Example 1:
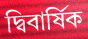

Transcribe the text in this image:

দ্বিবার্ষিক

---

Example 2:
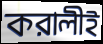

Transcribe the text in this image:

করালীই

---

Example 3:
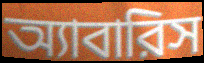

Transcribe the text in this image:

অ্যাবারিস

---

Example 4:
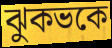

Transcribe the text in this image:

ঝুকভকে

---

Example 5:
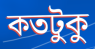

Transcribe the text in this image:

কতটুকু